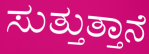
ಸುತ್ತುತ್ತಾನೆ